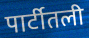
पार्टीतली